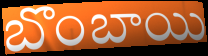
బొంబాయి